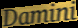
Damini